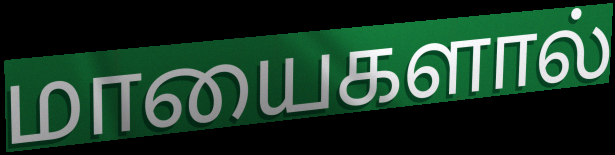
மாயைகளால்